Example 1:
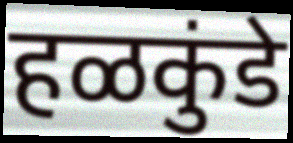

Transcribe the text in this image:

हळकुंडे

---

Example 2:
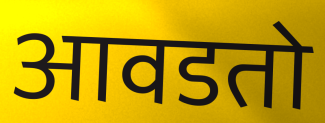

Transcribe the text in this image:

आवडतो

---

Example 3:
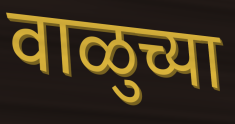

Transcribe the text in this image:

वाळुच्या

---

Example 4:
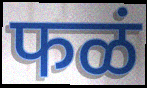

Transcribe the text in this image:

फळं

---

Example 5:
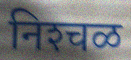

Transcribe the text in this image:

निश्चळ